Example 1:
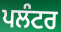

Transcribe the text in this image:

ਪਲੰਟਰ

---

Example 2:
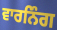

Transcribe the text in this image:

ਵਾਰਨਿੰਗ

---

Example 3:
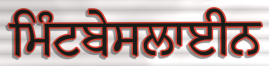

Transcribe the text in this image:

ਮਿੰਟਬੇਸਲਾਈਨ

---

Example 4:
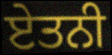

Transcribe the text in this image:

ਏਤਨੀ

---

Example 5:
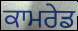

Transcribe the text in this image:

ਕਾਮਰੇਡ